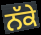
ਨੱਕੇ